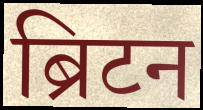
ब्रिटन